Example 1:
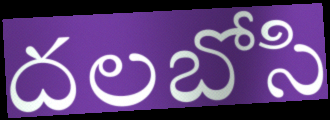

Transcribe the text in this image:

దలబోసి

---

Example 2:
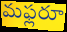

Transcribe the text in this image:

మఫ్లరూ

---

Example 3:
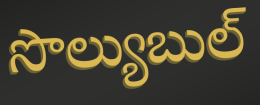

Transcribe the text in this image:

సొల్యుబుల్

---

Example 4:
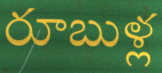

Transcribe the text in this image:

రూబుళ్ల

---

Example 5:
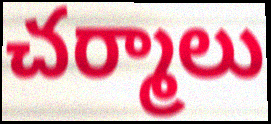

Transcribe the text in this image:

చర్మాలు